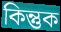
কিন্তুক